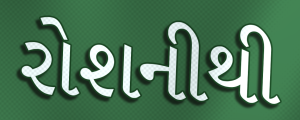
રોશનીથી